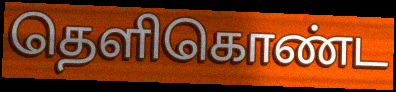
தெளிகொண்ட